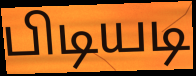
பிடியடி